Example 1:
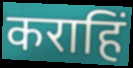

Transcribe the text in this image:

कराहिं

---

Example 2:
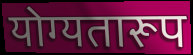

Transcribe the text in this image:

योग्यतारूप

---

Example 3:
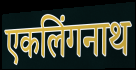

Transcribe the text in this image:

एकलिंगनाथ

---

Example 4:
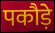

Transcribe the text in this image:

पकौड़े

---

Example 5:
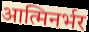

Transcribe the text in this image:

आत्मिनर्भर